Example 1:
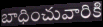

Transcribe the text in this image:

బాధించువారికి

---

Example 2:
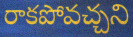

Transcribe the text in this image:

రాకపోవచ్చని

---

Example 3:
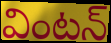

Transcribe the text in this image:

వింటన్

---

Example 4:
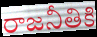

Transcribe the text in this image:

రాజనీతికి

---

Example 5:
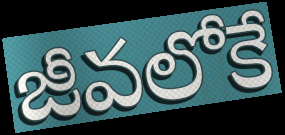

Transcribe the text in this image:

జీవలోకే